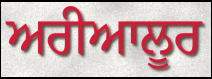
ਅਰੀਆਲੂਰ